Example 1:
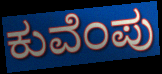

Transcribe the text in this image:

ಕುವೆಂಪು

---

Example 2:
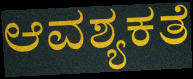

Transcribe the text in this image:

ಆವಶ್ಯಕತೆ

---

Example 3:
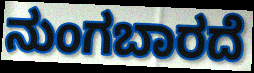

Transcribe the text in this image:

ನುಂಗಬಾರದೆ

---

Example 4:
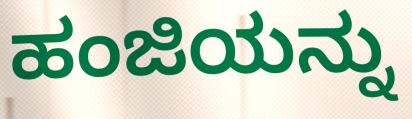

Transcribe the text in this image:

ಹಂಜಿಯನ್ನು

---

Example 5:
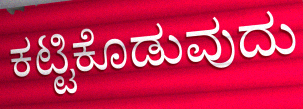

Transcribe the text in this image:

ಕಟ್ಟಿಕೊಡುವುದು